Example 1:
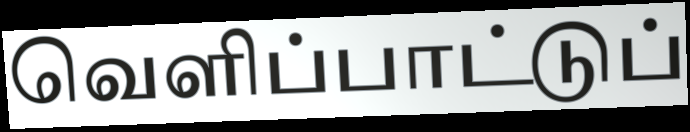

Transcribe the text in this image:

வெளிப்பாட்டுப்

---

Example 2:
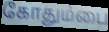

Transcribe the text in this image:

கோதும்பை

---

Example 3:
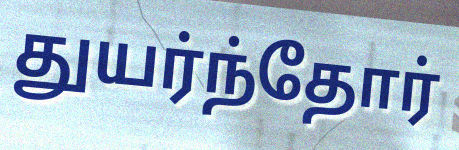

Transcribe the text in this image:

துயர்ந்தோர்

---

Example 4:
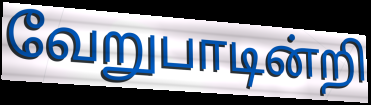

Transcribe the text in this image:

வேறுபாடின்றி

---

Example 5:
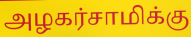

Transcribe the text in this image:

அழகர்சாமிக்கு